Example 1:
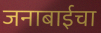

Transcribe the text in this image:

जनाबाईचा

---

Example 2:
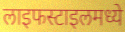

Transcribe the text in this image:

लाइफस्टाइलमध्ये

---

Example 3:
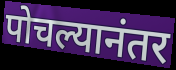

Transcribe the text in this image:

पोचल्यानंतर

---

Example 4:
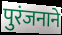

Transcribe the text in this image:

पुरंजनाने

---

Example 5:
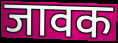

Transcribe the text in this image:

जावक